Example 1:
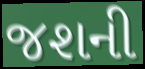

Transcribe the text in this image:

જશની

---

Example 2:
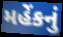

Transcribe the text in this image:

મહેંકનું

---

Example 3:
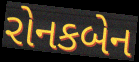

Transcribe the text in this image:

રોનકબેન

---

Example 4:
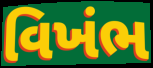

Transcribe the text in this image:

વિખંભ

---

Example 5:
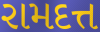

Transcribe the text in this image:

રામદત્ત